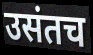
उसंतच